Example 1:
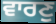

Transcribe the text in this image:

ਵਾਰਣੁ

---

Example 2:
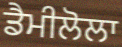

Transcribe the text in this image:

ਡੈਮੀਲੋਲਾ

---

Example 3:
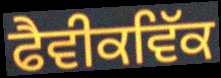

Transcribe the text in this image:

ਫੈਵੀਕਵਿੱਕ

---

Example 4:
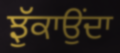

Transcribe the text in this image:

ਝੁੱਕਾਉਂਦਾ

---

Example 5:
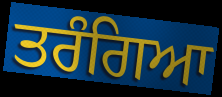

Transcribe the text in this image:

ਤਰੰਗਿਆ